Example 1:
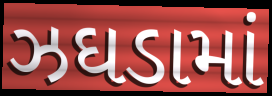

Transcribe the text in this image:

ઝઘડામાં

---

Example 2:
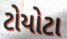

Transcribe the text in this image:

ટોયોટા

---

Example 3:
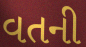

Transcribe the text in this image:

વતની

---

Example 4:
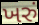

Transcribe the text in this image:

ખરું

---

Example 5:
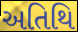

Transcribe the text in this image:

અતિથિ